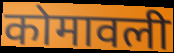
कोमावली